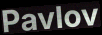
Pavlov